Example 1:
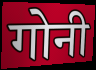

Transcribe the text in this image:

गोनी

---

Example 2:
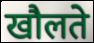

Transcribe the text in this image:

खौलते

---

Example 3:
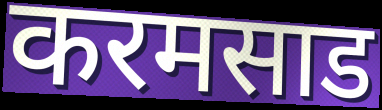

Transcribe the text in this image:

करमसाड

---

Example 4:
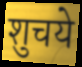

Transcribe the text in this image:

शुचये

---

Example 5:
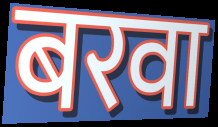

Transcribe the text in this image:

बरवा